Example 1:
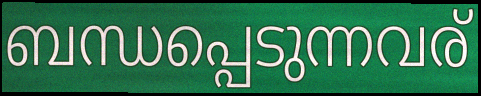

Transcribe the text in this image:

ബന്ധപ്പെടുന്നവര്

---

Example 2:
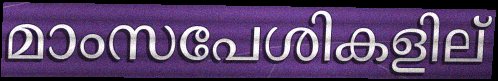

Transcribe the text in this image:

മാംസപേശികളില്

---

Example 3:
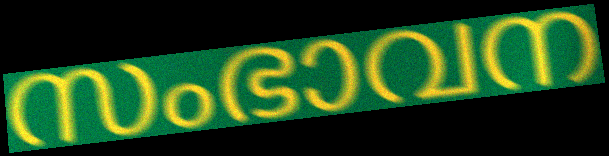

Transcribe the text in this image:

സംഭാവന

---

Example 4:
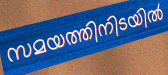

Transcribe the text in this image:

സമയത്തിനിടയിൽ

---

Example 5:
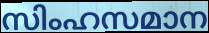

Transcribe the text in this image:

സിംഹസമാന